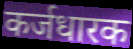
कर्जधारक